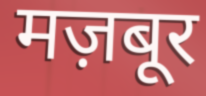
मज़बूर